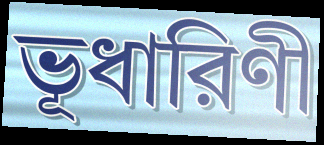
ভূধারিণী